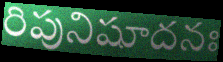
రిపునిషూదనః